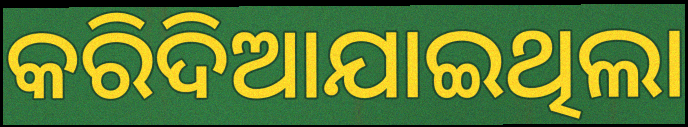
କରିଦିଆଯାଇଥିଲା